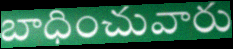
బాధించువారు